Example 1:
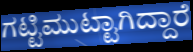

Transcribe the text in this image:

ಗಟ್ಟಿಮುಟ್ಟಾಗಿದ್ದಾರೆ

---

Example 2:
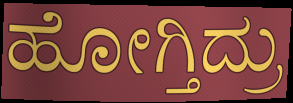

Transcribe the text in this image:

ಹೋಗ್ತಿದ್ರು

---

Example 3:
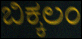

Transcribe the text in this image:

ಬಿಕ್ಕಲಂ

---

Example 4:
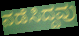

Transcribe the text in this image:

ನಡೆಸಿದ್ದವು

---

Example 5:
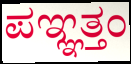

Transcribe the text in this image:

ಪಞ್ಞತ್ತಂ